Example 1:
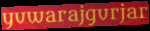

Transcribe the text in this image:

yuwarajgurjar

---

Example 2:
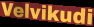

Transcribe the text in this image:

Velvikudi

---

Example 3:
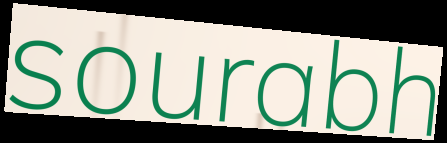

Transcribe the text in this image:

sourabh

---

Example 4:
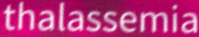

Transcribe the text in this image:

thalassemia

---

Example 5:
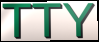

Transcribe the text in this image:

TTY